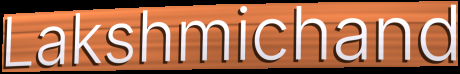
Lakshmichand